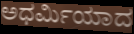
ಅಧರ್ಮಿಯಾದ